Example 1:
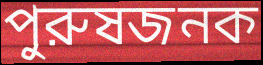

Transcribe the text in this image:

পুৰুষজনক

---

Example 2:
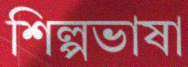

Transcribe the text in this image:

শিল্পভাষা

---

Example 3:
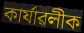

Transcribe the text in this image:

কাৰ্যাৱলীক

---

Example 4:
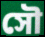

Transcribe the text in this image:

সৌ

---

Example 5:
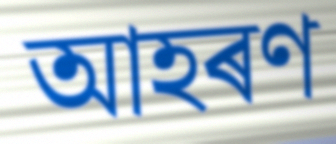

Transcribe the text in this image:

আহৰণ